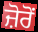
ਜ਼ੋਰੋਂ